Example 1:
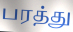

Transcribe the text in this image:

பரத்து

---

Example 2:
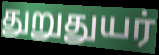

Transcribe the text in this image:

துறுதுயர்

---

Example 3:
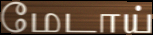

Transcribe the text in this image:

மேடாய்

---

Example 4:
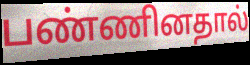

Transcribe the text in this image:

பண்ணினதால்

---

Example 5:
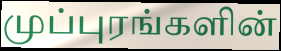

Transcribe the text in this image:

முப்புரங்களின்